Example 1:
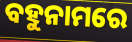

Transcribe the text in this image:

ବହୁନାମରେ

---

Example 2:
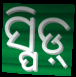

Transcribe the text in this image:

ସ୍ପିଡ଼୍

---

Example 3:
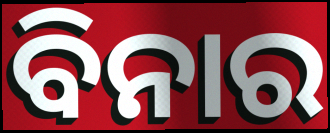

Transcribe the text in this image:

ବିନାର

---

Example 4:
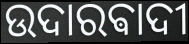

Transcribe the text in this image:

ଉଦାରଵାଦୀ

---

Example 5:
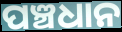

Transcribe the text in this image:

ପଞ୍ଚଧାନ